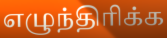
எழுந்திரிக்க